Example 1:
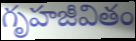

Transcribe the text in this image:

గృహజీవితం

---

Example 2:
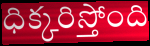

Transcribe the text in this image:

ధిక్కరిస్తోంది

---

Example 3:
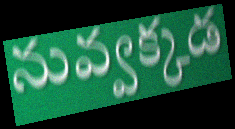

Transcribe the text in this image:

నువ్వక్కడ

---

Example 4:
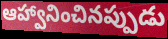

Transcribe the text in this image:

ఆహ్వానించినప్పుడు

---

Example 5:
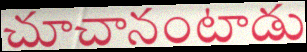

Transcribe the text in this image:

చూచానంటాడు